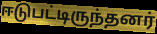
ஈடுபட்டிருந்தனர்